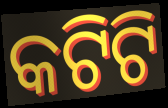
କଟିଟି